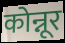
कोन्नूर